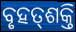
ବୃହତ୍‌ଶକ୍ତି